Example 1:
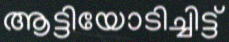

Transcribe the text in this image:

ആട്ടിയോടിച്ചിട്ട്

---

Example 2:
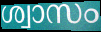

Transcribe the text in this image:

ശ്വാസം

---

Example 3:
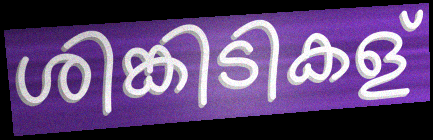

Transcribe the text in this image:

ശിങ്കിടികള്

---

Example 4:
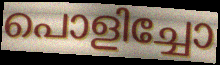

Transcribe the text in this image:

പൊളിച്ചോ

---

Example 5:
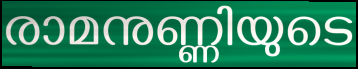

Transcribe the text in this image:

രാമനുണ്ണിയുടെ